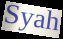
Syah